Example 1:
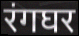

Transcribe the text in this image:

रंगघर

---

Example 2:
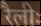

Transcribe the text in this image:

रैलीः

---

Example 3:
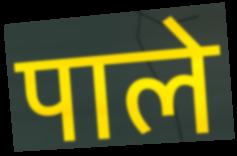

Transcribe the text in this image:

पाले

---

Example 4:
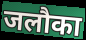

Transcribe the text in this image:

जलौका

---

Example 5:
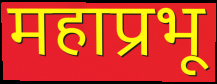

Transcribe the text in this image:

महाप्रभू